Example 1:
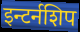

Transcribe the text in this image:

इन्टर्नशिप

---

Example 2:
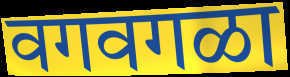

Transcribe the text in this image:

वगवगळा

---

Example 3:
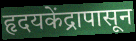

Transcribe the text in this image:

हृदयकेंद्रापासून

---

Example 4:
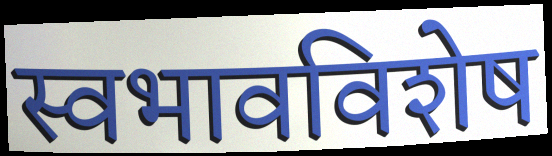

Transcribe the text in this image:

स्वभावविशेष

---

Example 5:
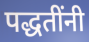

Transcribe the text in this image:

पद्धतींनी